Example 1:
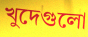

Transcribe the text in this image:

খুদেগুলো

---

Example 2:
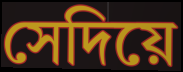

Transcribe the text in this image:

সেদিয়ে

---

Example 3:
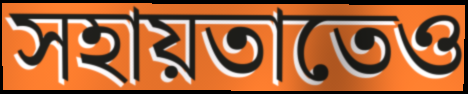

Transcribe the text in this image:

সহায়তাতেও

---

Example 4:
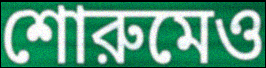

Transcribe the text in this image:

শোরুমেও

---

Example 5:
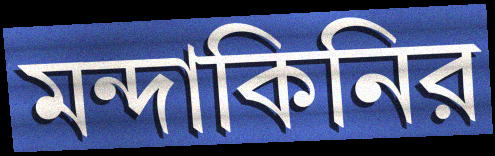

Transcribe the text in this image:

মন্দাকিনির